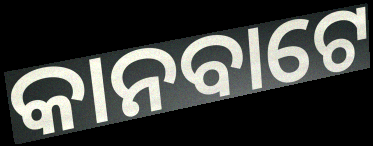
କାନବାଟେ